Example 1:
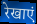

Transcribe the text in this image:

रेखाएं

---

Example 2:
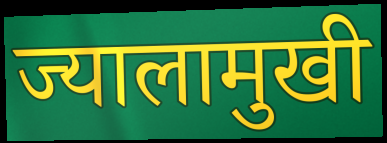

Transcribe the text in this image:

ज्यालामुखी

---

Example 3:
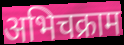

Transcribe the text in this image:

अभिचक्राम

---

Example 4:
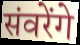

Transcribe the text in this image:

संवरेंगे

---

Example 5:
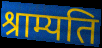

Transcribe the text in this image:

श्राम्यति